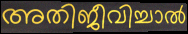
അതിജീവിച്ചാൽ